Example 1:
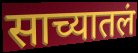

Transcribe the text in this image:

साच्यातलं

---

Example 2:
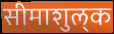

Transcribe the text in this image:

सीमाशुल्क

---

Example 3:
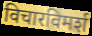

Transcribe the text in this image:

विचारविमर्श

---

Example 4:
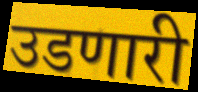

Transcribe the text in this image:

उडणारी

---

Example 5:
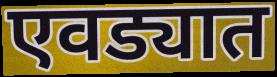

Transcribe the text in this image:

एवड्यात